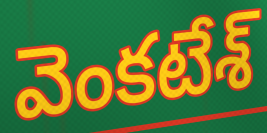
వెంకటేశ్